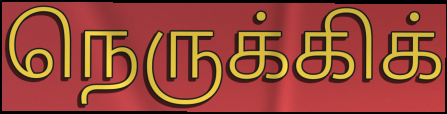
நெருக்கிக்